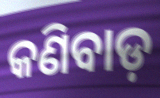
କଣିବାଡ଼